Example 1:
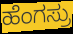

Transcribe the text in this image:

ಹೆಂಗಸ್ರು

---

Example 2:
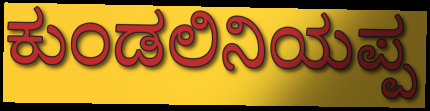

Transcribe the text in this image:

ಕುಂಡಲಿನಿಯಪ್ಪ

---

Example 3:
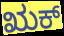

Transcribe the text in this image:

ಋಕ್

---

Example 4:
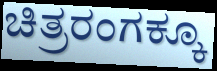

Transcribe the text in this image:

ಚಿತ್ರರಂಗಕ್ಕೂ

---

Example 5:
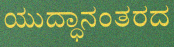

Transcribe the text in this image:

ಯುದ್ಧಾನಂತರದ